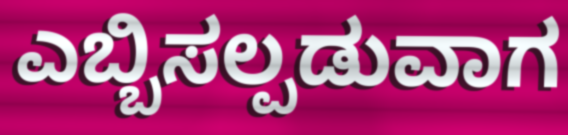
ಎಬ್ಬಿಸಲ್ಪಡುವಾಗ